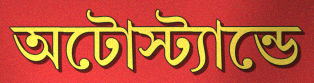
অটোস্ট্যান্ডে